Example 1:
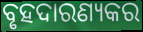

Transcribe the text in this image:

ବୃହଦାରଣ୍ୟକର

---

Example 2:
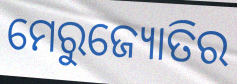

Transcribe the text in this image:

ମେରୁଜ୍ୟୋତିର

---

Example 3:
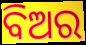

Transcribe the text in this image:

ବିଅର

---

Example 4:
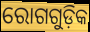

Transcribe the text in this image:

ରୋଗଗୁଡ଼ିକ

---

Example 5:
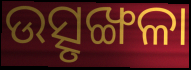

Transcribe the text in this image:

ଉତ୍ସୃଙ୍ଖଳା